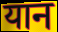
यान